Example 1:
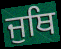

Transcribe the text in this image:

ਜੁਥਿ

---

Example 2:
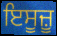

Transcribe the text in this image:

ਇਸੂਜ਼ੂ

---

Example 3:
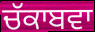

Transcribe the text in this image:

ਚੱਕਾਬਵਾ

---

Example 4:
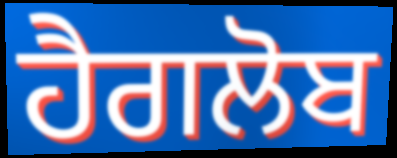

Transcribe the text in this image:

ਹੈਗਲੋਬ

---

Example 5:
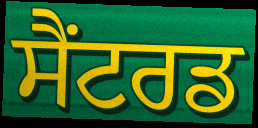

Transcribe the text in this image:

ਸੈਂਟਰਡ